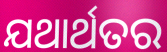
ଯଥାର୍ଥତର